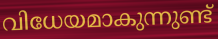
വിധേയമാകുന്നുണ്ട്